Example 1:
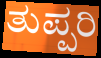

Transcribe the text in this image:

ತುಪ್ಪರಿ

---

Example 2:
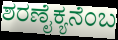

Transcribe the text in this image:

ಶರಣೈಕ್ಯನೆಂಬ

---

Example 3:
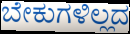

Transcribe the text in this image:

ಬೇಕುಗಳಿಲ್ಲದ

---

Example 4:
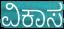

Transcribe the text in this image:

ವಿಕಾಸ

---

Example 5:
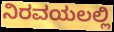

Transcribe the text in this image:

ನಿರವಯಲಲ್ಲಿ